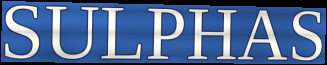
SULPHAS